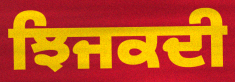
ਝਿਜਕਦੀ